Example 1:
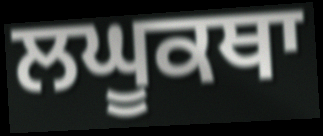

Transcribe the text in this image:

ਲਘੂਕਥਾ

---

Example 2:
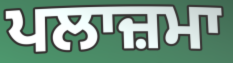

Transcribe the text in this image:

ਪਲਾਜ਼ਮਾ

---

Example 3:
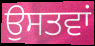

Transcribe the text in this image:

ਉਸਤਵਾਂ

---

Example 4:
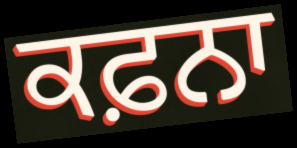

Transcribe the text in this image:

ਕਫ਼ਨਾ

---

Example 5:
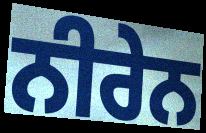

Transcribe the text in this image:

ਨੀਰੇਨ